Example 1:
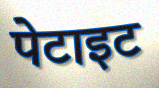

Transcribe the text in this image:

पेटाइट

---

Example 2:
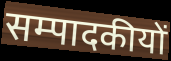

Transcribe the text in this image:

सम्पादकीयों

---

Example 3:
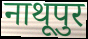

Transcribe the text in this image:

नाथूपुर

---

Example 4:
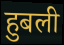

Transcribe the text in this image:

हुबली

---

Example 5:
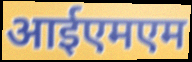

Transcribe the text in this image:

आईएमएम